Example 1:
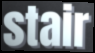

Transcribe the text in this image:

stair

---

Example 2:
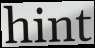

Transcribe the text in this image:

hint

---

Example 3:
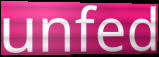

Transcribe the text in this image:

unfed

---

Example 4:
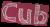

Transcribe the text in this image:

Cub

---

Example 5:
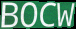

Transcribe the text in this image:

BOCW